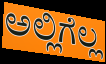
ಅಲ್ಲಿಗೆಲ್ಲ